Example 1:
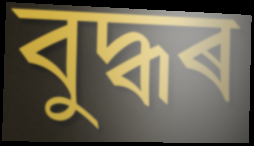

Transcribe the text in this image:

বুদ্ধৰ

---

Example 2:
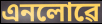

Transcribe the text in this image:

এনলোৱে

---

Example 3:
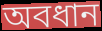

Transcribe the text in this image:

অবধান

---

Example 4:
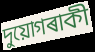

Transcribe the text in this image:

দুয়োগৰাকী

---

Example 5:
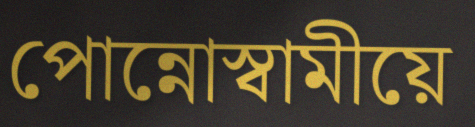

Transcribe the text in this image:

পোন্নোস্বামীয়ে